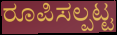
ರೂಪಿಸಲ್ಪಟ್ಟ